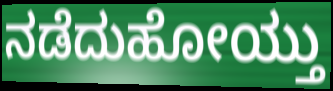
ನಡೆದುಹೋಯ್ತು